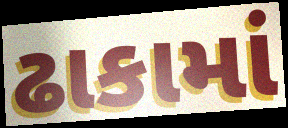
ઢાકામાં